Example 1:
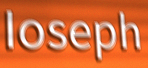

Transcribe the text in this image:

Ioseph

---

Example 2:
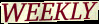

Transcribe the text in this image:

WEEKLY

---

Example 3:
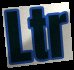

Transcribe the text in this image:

Ltr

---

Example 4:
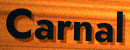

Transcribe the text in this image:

Carnal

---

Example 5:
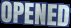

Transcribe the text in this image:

OPENED